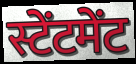
स्टेंटमेंट